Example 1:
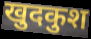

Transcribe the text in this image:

खुदकुश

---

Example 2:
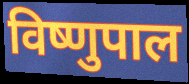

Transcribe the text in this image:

विष्णुपाल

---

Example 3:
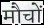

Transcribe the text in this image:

मौचों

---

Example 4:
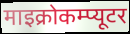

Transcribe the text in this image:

माइक्रोकम्प्यूटर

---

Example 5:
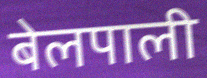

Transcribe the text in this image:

बेलपाली